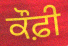
ਕੌਫ਼ੀ